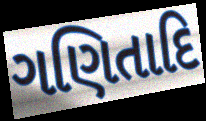
ગણિતાદિ